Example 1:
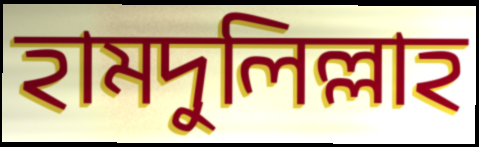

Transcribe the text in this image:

হামদুলিল্লাহ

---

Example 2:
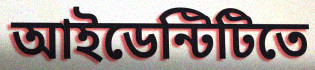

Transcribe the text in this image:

আইডেন্টিটিতে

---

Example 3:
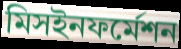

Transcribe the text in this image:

মিসইনফর্মেশন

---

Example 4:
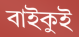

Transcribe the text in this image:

বাইকুই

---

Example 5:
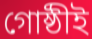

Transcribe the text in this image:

গোষ্ঠীই